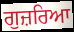
ਗੁਜ਼ਰਿਆ